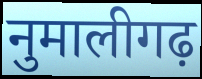
नुमालीगढ़